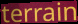
terrain